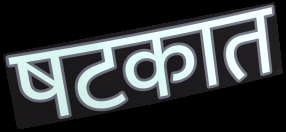
षटकात